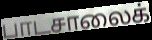
பாடசாலைக்